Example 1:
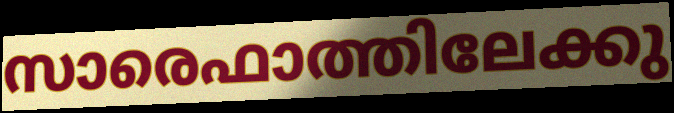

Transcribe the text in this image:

സാരെഫാത്തിലേക്കു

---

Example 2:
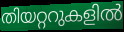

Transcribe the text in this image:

തിയറ്ററുകളിൽ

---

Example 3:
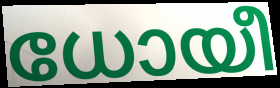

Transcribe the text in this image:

ധോയീ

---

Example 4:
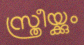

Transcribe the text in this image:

സ്ത്രീയ്ക്കും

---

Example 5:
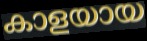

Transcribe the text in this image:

കാളയായ